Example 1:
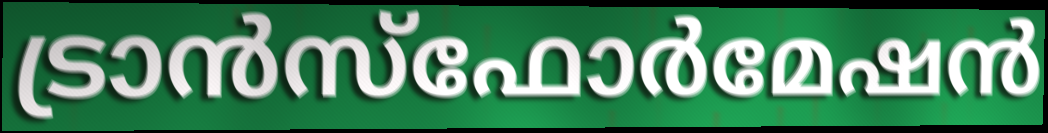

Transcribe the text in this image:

ട്രാൻസ്ഫോർമേഷൻ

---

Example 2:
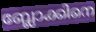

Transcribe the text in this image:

ബ്ലോക്കിനെ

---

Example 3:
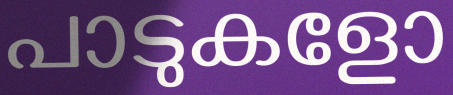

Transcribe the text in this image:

പാടുകളോ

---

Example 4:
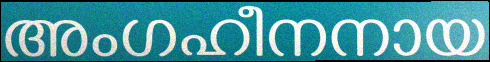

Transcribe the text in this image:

അംഗഹീനനായ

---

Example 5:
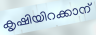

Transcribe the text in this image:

കൃഷിയിറക്കാന്